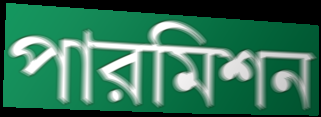
পারমিশন